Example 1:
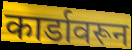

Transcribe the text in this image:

कार्डावरून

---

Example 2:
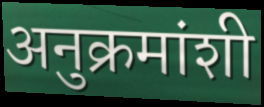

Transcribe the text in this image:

अनुक्रमांशी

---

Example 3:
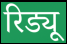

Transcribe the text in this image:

रिड्यू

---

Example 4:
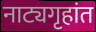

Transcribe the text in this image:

नाट्यगृहांत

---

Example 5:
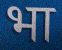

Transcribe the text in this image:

भा